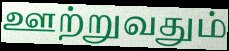
ஊற்றுவதும்